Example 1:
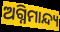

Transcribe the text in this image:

ଅଗ୍ନିମାନ୍ଦ୍ୟ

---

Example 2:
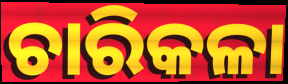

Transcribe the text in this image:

ଚାରିକଳା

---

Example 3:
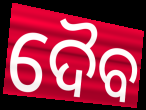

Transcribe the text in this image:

ଦୈବ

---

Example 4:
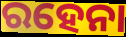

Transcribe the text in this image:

ରହେନା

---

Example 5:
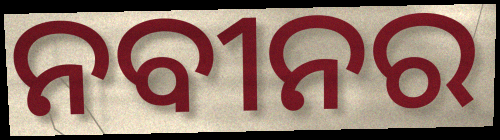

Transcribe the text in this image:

ନବୀନର